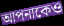
আপনাকেও